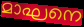
മാഘനെ